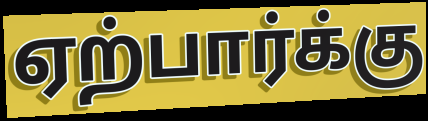
ஏற்பார்க்கு